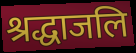
श्रद्धाजलि